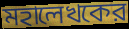
মহালেখকের